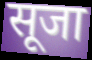
सूजा